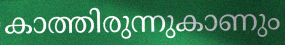
കാത്തിരുന്നുകാണും